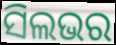
ସିଲଭର